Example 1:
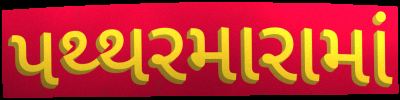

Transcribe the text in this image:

પથ્થરમારામાં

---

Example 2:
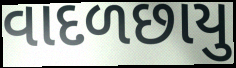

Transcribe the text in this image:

વાદળછાયુ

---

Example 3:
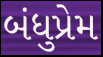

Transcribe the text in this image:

બંધુપ્રેમ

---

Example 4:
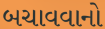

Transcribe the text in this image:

બચાવવાનો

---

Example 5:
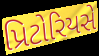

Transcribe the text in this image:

પ્રિટોરિયસે